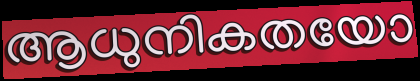
ആധുനികതയോ